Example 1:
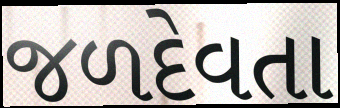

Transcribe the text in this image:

જળદેવતા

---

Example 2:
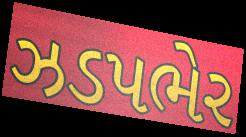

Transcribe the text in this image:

ઝડપભેર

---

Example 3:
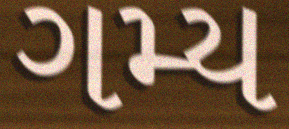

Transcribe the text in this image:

ગમ્ય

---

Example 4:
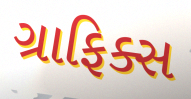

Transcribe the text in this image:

ગ્રાફિક્સ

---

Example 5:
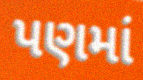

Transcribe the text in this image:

પણમાં